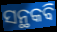
ସନ୍ଥକବି